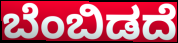
ಬೆಂಬಿಡದೆ